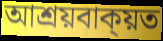
আশ্ৰয়বাক্য়ত